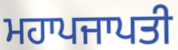
ਮਹਾਪਜਾਪਤੀ